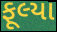
ફૂલ્યા